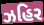
ઝહિર